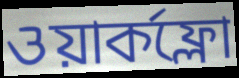
ওয়ার্কফ্লো